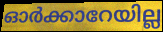
ഓർക്കാറേയില്ല